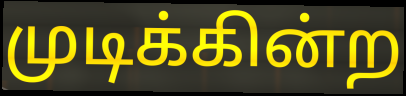
முடிக்கின்ற